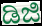
ಡಿಜಿ